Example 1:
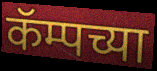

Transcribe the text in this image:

कॅम्पच्या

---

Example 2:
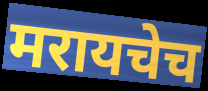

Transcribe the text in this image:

मरायचेच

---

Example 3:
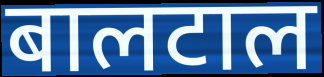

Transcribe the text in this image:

बालटाल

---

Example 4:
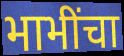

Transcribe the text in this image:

भाभींचा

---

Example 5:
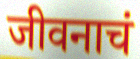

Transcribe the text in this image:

जीवनाचं